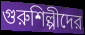
গুরুশিল্পীদের